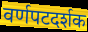
वर्णपटदर्शक